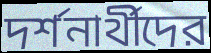
দর্শনার্থীদের